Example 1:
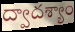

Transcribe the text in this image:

ద్వాదశ్యాం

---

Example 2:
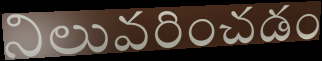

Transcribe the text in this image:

నిలువరించడం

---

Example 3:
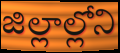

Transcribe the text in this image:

జిల్లాల్లోని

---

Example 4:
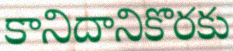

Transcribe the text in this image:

కానిదానికొరకు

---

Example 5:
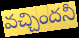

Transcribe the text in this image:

వచ్చిందనీ